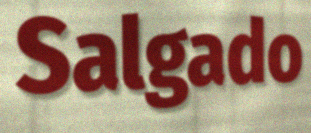
Salgado